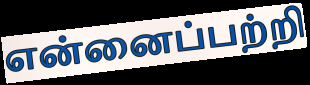
என்னைப்பற்றி